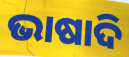
ଭାଷାଦି